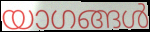
യാഗങ്ങൾ